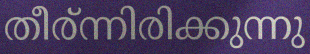
തീര്ന്നിരിക്കുന്നു